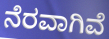
ನೆರವಾಗಿವೆ